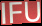
IFU